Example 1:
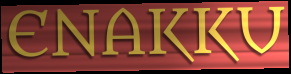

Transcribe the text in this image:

ENAKKU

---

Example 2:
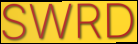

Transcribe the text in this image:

SWRD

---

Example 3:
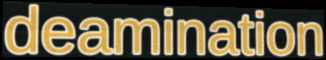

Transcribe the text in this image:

deamination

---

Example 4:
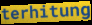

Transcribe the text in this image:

terhitung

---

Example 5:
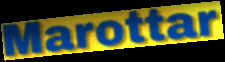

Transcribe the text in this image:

Marottar